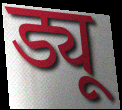
ड्यू